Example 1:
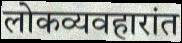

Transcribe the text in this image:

लोकव्यवहारांत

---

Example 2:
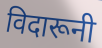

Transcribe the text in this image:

विदारूनी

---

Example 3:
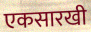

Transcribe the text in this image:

एकसारखी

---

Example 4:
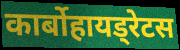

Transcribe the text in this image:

कार्बोहायड्रेटस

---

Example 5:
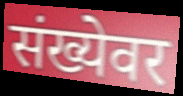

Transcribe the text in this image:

संख्येवर